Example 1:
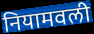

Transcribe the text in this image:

नियामवली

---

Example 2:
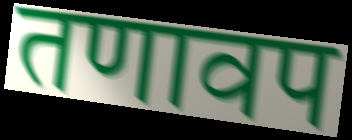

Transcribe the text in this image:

तणावप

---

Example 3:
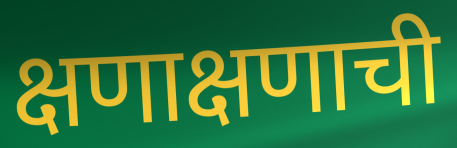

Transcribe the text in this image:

क्षणाक्षणाची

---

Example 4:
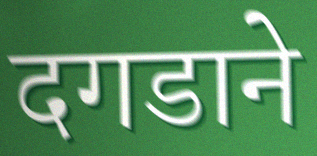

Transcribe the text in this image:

दगडाने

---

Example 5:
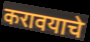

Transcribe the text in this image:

करावयाचे